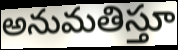
అనుమతిస్తూ